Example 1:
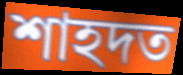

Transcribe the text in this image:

শাহদত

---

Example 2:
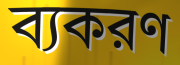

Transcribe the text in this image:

ব্যকরণ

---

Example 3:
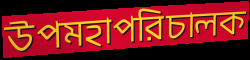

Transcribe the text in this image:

উপমহাপরিচালক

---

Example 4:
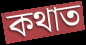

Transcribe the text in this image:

কথাত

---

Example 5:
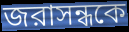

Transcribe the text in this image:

জরাসন্ধকে